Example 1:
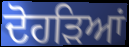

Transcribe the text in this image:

ਦੋਹੜਿਆਂ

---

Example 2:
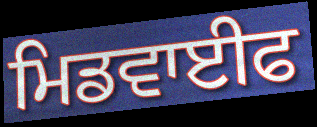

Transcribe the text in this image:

ਮਿਡਵਾਈਫ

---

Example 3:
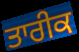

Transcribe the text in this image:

ਤਾਰੀਕ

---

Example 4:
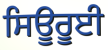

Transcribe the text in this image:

ਸਿਊਰੂਈ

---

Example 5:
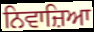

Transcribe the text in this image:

ਨਿਵਾਜ਼ਿਆ